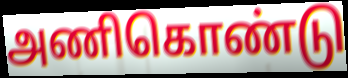
அணிகொண்டு